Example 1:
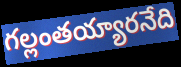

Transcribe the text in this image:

గల్లంతయ్యారనేది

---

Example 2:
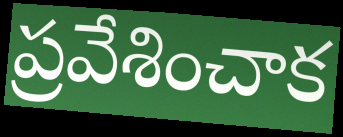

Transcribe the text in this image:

ప్రవేశించాక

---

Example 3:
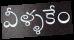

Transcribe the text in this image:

వీళ్ళకేం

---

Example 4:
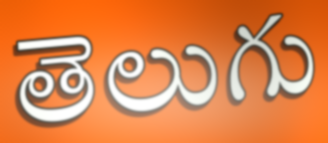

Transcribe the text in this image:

తెలుగు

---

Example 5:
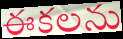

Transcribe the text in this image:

ఈకలను